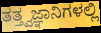
ತತ್ತ್ವಜ್ಞಾನಿಗಳಲ್ಲಿ